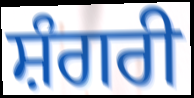
ਸ਼ੰਗਰੀ